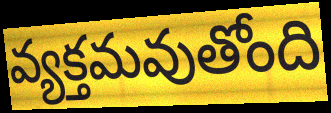
వ్యక్తమవుతోంది